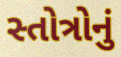
સ્તોત્રોનું